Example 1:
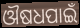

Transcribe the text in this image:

ଔଷଧପାଇଁ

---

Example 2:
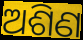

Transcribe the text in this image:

ଅଶିଣ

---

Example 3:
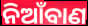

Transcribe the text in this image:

ନିଆଁବାଣ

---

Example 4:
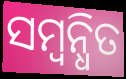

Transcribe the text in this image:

ସମ୍ଵନ୍ଧିତ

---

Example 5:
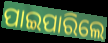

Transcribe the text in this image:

ପାଇପାରିଲେ